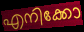
എനിക്കോ